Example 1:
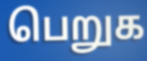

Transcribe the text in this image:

பெறுக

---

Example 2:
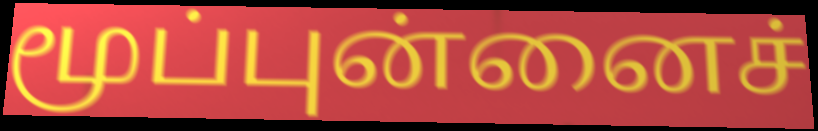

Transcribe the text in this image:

மூப்புன்னைச்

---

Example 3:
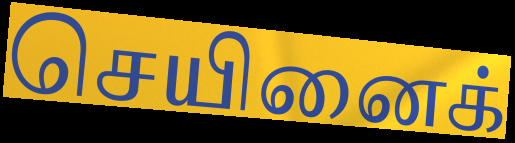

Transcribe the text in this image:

செயினைக்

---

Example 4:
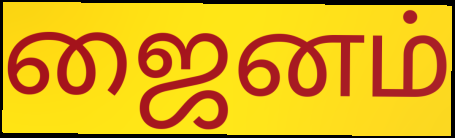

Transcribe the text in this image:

ஜைனம்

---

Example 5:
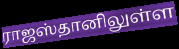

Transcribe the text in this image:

ராஜஸ்தானிலுள்ள